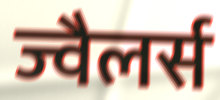
ज्वैलर्स